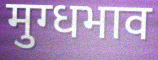
मुग्धभाव